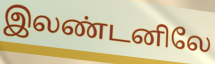
இலண்டனிலே